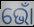
ଭୋଁ